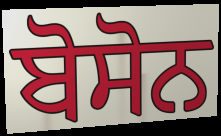
ਬੋਸੋਨ